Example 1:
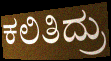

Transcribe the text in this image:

ಕಲಿತಿದ್ರು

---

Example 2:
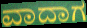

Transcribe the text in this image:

ವಾದಾಗ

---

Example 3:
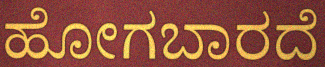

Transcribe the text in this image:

ಹೋಗಬಾರದೆ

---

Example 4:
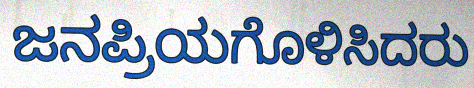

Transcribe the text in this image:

ಜನಪ್ರಿಯಗೊಳಿಸಿದರು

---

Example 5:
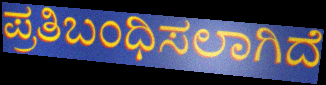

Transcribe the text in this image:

ಪ್ರತಿಬಂಧಿಸಲಾಗಿದೆ